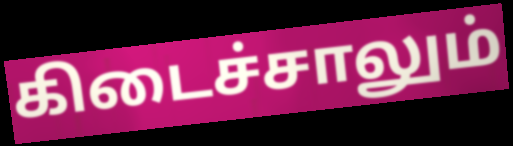
கிடைச்சாலும்